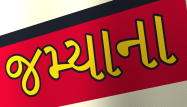
જમ્યાના